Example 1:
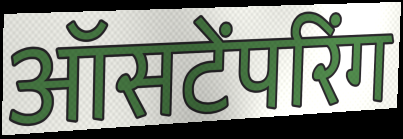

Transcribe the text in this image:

ऑसटेंपरिंग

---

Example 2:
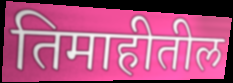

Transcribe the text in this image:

तिमाहीतील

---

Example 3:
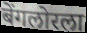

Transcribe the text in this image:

बेंगलोरला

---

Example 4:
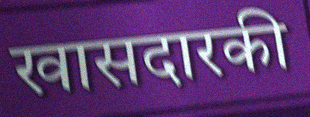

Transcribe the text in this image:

खासदारकी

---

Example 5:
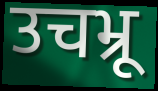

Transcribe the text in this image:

उचभ्रू